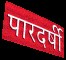
पारदर्षी